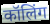
कॉलिंग